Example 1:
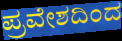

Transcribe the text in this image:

ಪ್ರವೇಶದಿಂದ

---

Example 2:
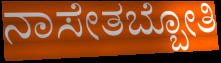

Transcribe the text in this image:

ನಾಸೇತಬ್ಬೋತಿ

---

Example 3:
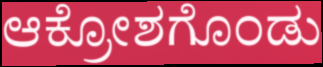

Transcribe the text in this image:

ಆಕ್ರೋಶಗೊಂಡು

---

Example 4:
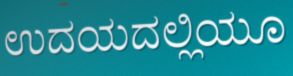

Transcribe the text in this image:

ಉದಯದಲ್ಲಿಯೂ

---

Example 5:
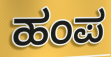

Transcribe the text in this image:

ಹಂಪ